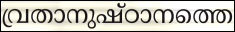
വ്രതാനുഷ്ഠാനത്തെ